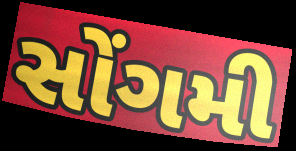
સોંગમી